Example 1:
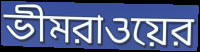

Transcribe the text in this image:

ভীমরাওয়ের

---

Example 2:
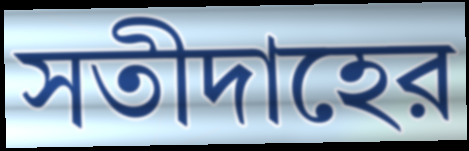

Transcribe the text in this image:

সতীদাহের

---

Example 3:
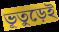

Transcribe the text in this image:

ভূতুড়েই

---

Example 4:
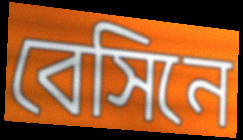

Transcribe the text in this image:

বেসিনে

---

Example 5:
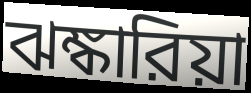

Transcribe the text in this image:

ঝঙ্কারিয়া